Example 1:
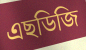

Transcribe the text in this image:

এছডিজি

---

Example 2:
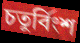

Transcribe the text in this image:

চতুৰ্বিংশ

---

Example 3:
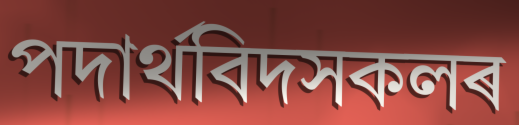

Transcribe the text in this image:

পদাৰ্থবিদসকলৰ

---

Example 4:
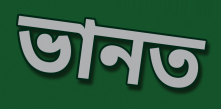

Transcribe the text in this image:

ভানত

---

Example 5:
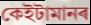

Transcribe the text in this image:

কেইটামানৰ